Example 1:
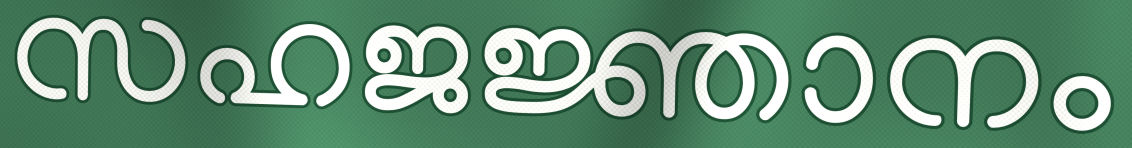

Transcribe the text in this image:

സഹജജ്ഞാനം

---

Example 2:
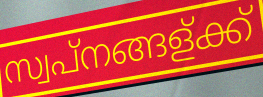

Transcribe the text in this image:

സ്വപ്നങ്ങള്ക്ക്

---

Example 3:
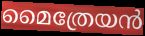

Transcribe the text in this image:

മൈത്രേയൻ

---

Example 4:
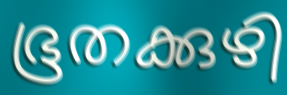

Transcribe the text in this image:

ഭൂതക്കുഴി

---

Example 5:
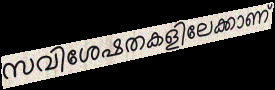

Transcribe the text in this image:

സവിശേഷതകളിലേക്കാണ്